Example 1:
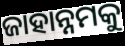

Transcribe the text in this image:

ଜାହାନ୍ନମକୁ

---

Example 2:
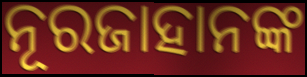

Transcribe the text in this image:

ନୂରଜାହାନଙ୍କ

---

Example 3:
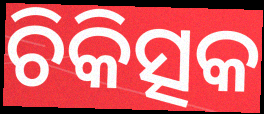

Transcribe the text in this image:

ଚିକିତ୍ସକ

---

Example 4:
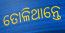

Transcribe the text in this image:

ତୋଳିଥାନ୍ତେ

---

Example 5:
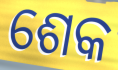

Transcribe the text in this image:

ଶେକ